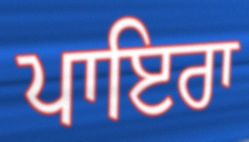
ਪਾਇਰਾ